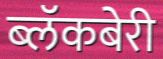
ब्लॅकबेरी